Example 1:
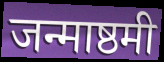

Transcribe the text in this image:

जन्माष्ठमी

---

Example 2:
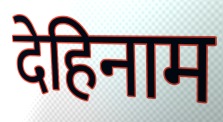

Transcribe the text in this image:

देहिनाम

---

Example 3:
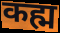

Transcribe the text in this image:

कह्म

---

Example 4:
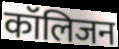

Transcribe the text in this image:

कॉलिजन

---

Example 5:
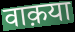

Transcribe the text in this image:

वाक़या